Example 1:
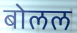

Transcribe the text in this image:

बोलल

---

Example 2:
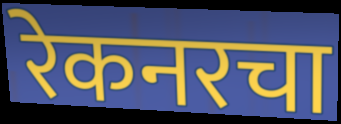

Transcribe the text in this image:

रेकनरचा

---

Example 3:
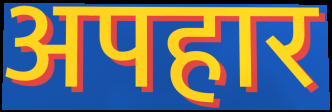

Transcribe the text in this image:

अपहार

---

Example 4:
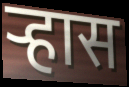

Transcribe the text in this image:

ऱ्हास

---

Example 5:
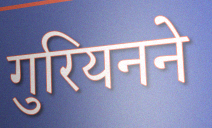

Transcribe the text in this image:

गुरियनने